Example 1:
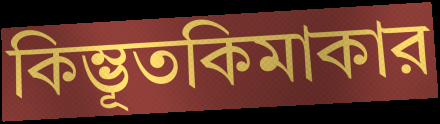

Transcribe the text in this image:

কিম্ভূতকিমাকার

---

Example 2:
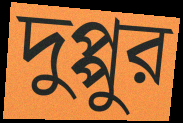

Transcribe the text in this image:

দুপ্পুর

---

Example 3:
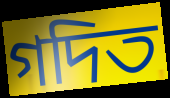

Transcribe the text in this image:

গদিত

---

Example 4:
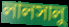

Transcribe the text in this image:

লালসালু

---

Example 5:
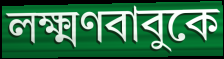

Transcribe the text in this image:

লক্ষ্মণবাবুকে